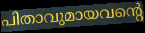
പിതാവുമായവന്റെ